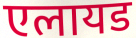
एलायड